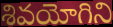
శివయోగిని